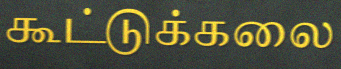
கூட்டுக்கலை